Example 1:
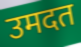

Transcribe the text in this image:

उमदत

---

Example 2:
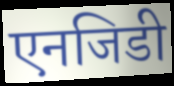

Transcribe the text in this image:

एनजिडी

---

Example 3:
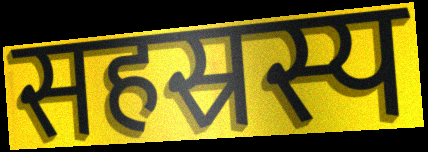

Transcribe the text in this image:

सहस्रस्य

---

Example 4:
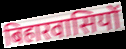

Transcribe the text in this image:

बिहारवासियों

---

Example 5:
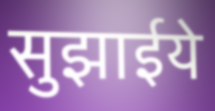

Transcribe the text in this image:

सुझाईये